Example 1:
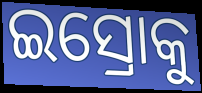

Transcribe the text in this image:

ଇସ୍ରୋକୁ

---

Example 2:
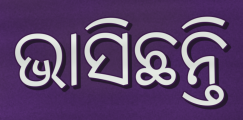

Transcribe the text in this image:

ଭାସିଛନ୍ତି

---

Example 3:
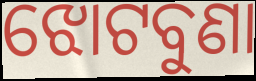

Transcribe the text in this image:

ଝୋଟବୁଣା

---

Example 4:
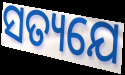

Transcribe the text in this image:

ସତ୍ୟଯେ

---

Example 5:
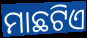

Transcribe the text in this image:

ମାଛଟିଏ